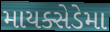
માયક્સેડેમા